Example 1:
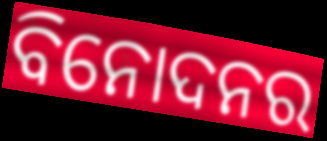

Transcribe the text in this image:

ବିନୋଦନର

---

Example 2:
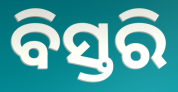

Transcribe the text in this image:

ବିସ୍ତରି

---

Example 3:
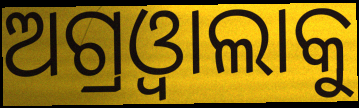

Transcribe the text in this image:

ଅଗ୍ରଓ୍ୱାଲାକୁ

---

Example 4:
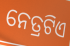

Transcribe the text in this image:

ନେତ୍ରଟିଏ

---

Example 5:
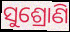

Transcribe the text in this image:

ସୁଶ୍ରୋଣି